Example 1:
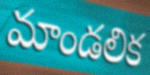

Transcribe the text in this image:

మాండలిక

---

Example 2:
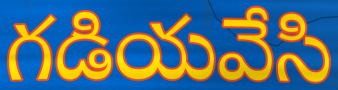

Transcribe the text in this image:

గడియవేసి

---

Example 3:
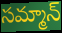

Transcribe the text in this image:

సమ్మాన్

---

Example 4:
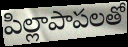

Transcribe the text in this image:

పిల్లాపాపలతో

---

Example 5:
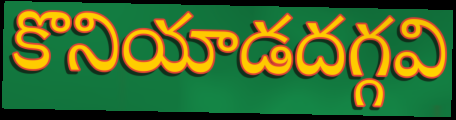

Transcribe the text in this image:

కొనియాడదగ్గవి